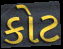
કોટ